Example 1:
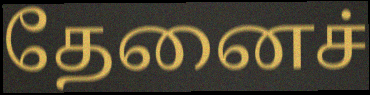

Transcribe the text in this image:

தேனைச்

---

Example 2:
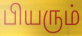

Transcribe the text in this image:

பியரும்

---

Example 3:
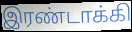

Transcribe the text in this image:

இரண்டாக்கி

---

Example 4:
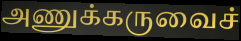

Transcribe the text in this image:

அணுக்கருவைச்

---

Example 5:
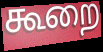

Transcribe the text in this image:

கூறை